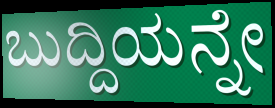
ಬುದ್ದಿಯನ್ನೇ